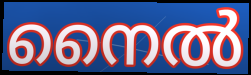
നൈൽ